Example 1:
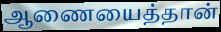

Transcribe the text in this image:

ஆணையைத்தான்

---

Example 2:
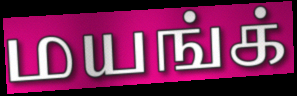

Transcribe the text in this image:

மயங்க்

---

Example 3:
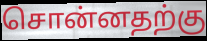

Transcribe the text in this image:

சொன்னதற்கு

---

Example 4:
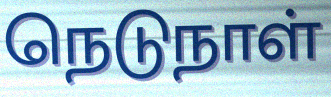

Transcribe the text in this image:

நெடுநாள்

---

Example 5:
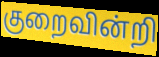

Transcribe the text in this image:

குறைவின்றி